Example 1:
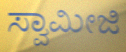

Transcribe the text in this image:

ಸ್ವಾಮೀಜಿ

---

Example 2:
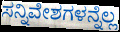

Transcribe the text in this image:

ಸನ್ನಿವೇಶಗಳನ್ನೆಲ್ಲ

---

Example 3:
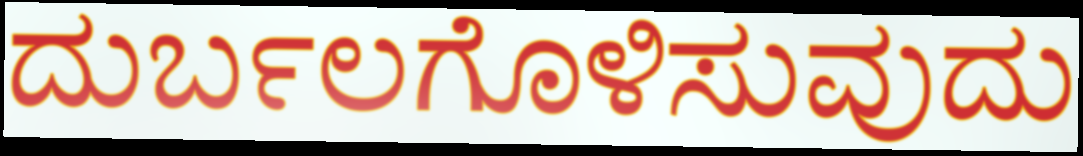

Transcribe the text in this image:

ದುರ್ಬಲಗೊಳಿಸುವುದು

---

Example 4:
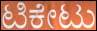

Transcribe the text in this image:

ಟಿಕೇಟು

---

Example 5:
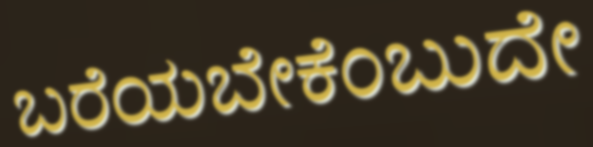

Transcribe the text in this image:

ಬರೆಯಬೇಕೆಂಬುದೇ